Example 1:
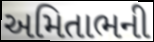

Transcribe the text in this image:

અમિતાભની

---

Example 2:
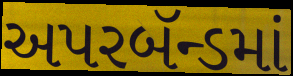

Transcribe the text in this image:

અપરબૅન્ડમાં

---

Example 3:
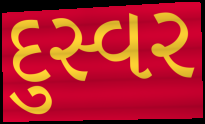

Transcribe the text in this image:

દુસ્વર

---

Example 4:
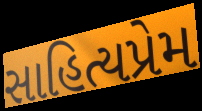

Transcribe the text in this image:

સાહિત્યપ્રેમ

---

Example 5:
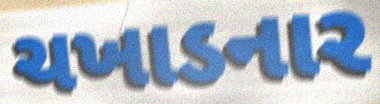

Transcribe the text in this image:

ચખાડનાર